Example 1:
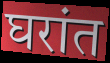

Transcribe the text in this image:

घरांत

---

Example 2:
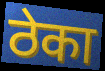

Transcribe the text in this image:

ठेका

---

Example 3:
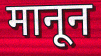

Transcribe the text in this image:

मानून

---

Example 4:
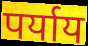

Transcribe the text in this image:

पर्याय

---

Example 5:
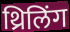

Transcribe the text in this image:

थ्रिलिंग